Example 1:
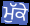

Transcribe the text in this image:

ਮੁੱਕੇ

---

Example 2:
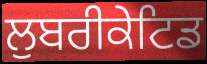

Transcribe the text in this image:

ਲੁਬਰੀਕੇਟਿਡ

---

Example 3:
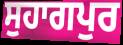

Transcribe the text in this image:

ਸੁਹਾਗਪੁਰ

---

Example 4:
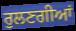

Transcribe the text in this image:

ਰੁਲਣਗੀਆਂ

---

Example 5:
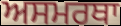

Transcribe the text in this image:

ਅਸਮਰਥਾ